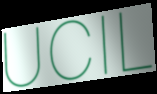
UCIL